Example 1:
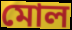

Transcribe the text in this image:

মোল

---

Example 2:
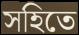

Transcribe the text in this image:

সহিতে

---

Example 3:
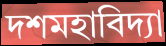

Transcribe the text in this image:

দশমহাবিদ্যা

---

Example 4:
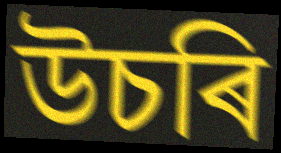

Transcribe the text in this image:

উচৰি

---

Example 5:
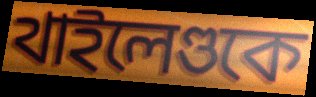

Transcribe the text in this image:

থাইলেণ্ডকে